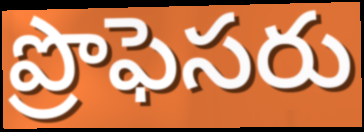
ప్రొఫెసరు